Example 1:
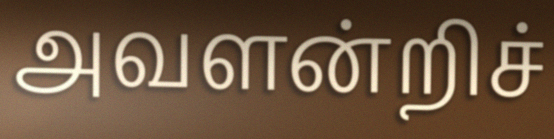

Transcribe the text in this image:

அவளன்றிச்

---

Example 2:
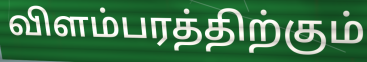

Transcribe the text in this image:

விளம்பரத்திற்கும்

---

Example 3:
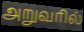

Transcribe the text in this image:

அறுவரில்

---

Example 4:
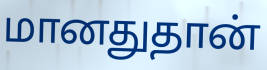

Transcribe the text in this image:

மானதுதான்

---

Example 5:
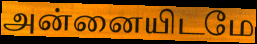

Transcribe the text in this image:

அன்னையிடமே